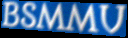
BSMMU